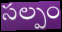
సల్పం